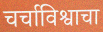
चर्चाविश्वाचा